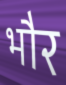
भौर